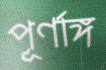
পূর্ণাঙ্গ